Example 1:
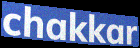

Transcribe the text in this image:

chakkar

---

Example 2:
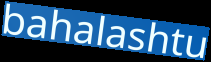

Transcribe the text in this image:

bahalashtu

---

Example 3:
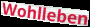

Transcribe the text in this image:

Wohlleben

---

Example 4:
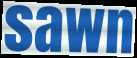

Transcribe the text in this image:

sawn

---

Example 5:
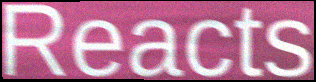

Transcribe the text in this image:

Reacts